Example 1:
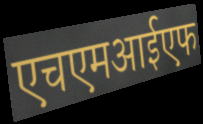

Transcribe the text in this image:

एचएमआईएफ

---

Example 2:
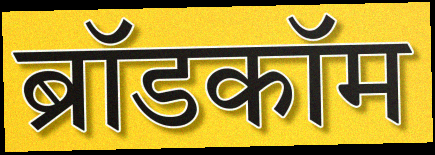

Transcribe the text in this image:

ब्रॉडकॉम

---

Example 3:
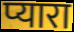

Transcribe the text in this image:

प्‍यारा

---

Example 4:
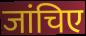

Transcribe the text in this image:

जांचिए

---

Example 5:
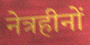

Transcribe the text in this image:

नेत्रहीनों